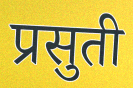
प्रसुती